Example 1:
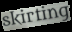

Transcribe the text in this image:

skirting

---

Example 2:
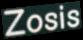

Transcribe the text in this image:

Zosis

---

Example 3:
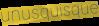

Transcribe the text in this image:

unusquisque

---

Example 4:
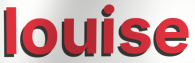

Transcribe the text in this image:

louise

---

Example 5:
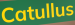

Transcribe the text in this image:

Catullus